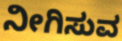
ನೀಗಿಸುವ